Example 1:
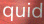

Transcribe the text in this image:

quid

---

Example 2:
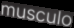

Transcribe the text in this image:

musculo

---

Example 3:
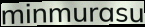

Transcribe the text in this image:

minmurasu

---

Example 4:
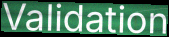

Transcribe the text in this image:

Validation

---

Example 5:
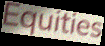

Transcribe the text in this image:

Equities